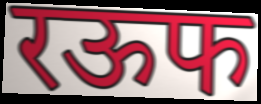
रऊफ